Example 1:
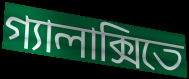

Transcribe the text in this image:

গ্যালাক্সিতে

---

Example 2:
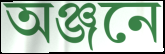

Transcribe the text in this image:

অঞ্জনে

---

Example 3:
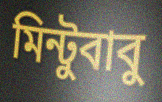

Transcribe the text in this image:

মিন্টুবাবু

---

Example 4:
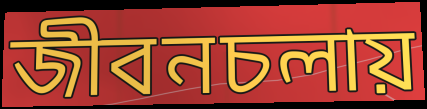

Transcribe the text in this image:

জীবনচলায়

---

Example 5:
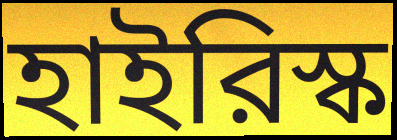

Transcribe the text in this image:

হাইরিস্ক